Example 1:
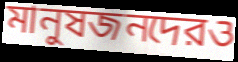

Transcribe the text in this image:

মানুষজনদেরও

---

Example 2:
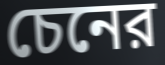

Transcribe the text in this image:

চেনের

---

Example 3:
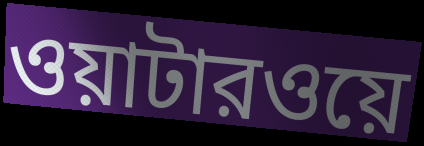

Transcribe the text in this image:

ওয়াটারওয়ে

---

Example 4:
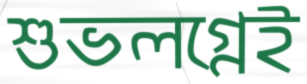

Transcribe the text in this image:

শুভলগ্নেই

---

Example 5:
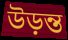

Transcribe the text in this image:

উড়ন্ত